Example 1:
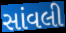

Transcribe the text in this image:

સાંવલી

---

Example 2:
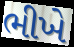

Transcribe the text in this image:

ભીખે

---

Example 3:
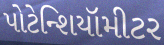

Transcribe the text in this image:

પોટેન્શિયૉમીટર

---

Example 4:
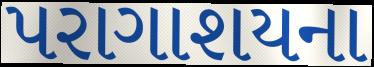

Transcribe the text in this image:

પરાગાશયના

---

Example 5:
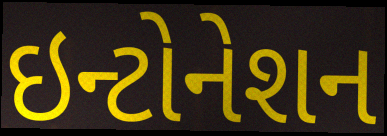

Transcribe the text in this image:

ઇન્ટોનેશન